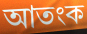
আতংক